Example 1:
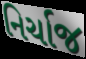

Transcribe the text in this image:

નિર્ચાજ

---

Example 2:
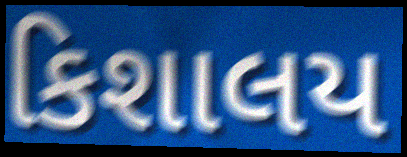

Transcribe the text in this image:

કિશાલય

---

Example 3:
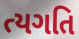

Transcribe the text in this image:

ત્યગતિ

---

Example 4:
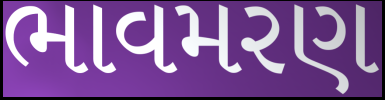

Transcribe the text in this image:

ભાવમરણ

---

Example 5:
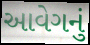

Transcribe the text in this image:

આવેગનું